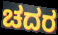
ಚದರ